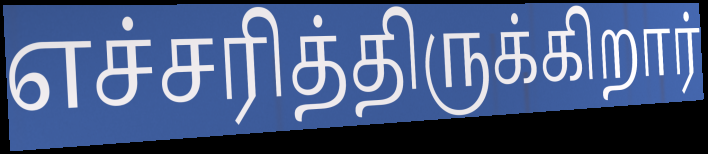
எச்சரித்திருக்கிறார்